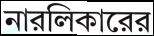
নারলিকারের